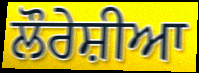
ਲੌਰੇਸ਼ੀਆ